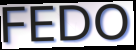
FEDO